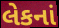
લેકનાં